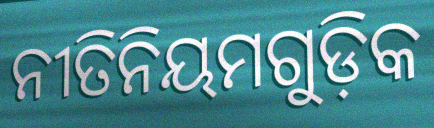
ନୀତିନିୟମଗୁଡ଼ିକ